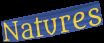
Natures